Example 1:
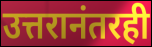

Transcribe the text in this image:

उत्तरानंतरही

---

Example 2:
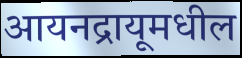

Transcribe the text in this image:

आयनद्रायूमधील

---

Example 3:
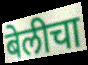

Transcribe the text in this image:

बेलीचा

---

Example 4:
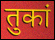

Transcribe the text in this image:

तुकां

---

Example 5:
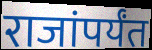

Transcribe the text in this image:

राजांपर्यंत